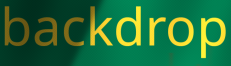
backdrop